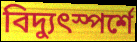
বিদ্যুৎস্পর্শে